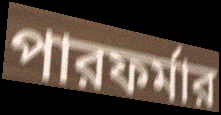
পারফর্মার